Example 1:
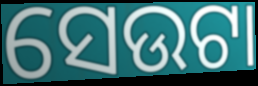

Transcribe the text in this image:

ସେଉଟା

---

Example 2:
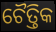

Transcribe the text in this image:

ଚୈତ୍ତିକ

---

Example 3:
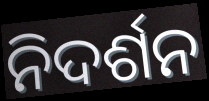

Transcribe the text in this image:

ନିଦର୍ଶନ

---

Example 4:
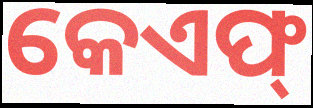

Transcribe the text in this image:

କେଏଫ୍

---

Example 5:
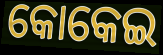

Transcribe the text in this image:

କୋକେଇ